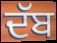
ਦੱਬ